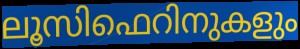
ലൂസിഫെറിനുകളും